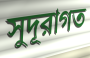
সুদূরাগত